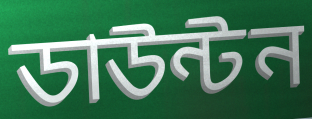
ডাউন্টন